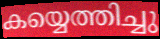
കയ്യെത്തിച്ചു